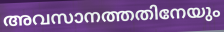
അവസാനത്തതിനേയും